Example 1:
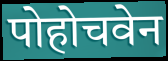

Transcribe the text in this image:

पोहोचवेन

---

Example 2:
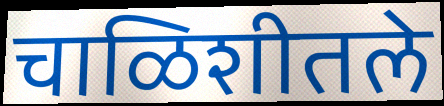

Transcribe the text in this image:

चाळिशीतले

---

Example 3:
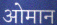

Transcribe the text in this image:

ओमान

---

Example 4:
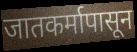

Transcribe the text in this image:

जातकर्मापासून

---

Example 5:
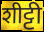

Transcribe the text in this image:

शीट्टी